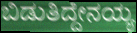
ಬಿಡುತಿದ್ದೇನಯ್ಯ